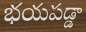
భయపడ్డా